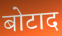
बोटाद